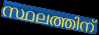
സ്ഥലത്തിന്